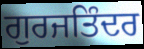
ਗੁਰਜਤਿੰਦਰ